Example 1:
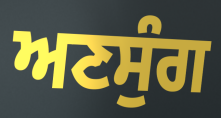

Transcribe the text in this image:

ਅਣਸੁੰਗ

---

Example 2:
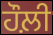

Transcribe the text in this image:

ਹੌਲ਼ੀ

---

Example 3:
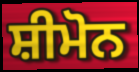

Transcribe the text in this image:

ਸ਼ੀਮੋਨ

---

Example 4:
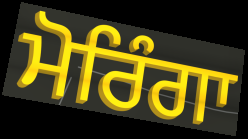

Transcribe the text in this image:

ਮੋਰਿੰਗਾ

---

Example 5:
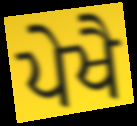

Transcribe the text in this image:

ਪੇਖੈ